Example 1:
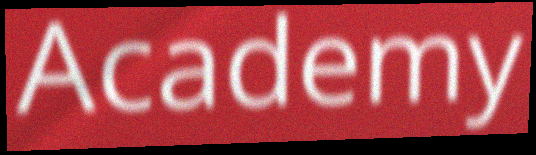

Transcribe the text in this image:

Academy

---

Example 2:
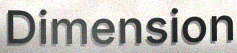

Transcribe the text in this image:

Dimension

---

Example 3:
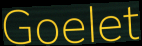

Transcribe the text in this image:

Goelet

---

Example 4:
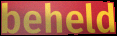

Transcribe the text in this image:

beheld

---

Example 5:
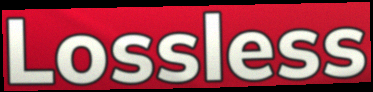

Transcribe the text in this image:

Lossless